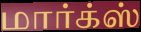
மார்க்ஸ்